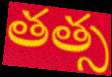
తత్స